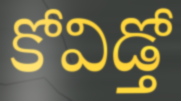
కోవిడ్తో